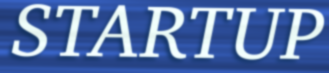
STARTUP